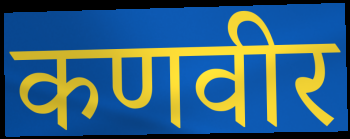
कणवीर